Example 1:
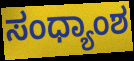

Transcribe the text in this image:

ಸಂಧ್ಯಾಂಶ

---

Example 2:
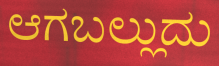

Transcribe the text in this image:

ಆಗಬಲ್ಲುದು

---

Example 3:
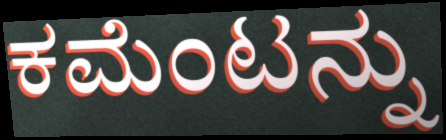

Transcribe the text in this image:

ಕಮೆಂಟನ್ನು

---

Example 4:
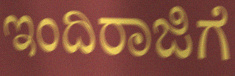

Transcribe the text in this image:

ಇಂದಿರಾಜಿಗೆ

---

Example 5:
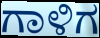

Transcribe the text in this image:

ಗಾಳಿಗ